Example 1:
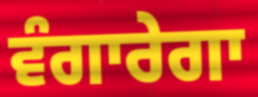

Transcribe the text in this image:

ਵੰਗਾਰੇਗਾ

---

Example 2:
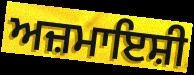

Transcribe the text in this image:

ਅਜ਼ਮਾਇਸ਼ੀ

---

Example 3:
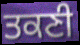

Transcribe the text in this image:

ਤਕਣੀ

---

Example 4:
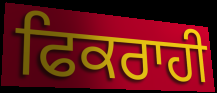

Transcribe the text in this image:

ਫਿਕਰਾਹੀ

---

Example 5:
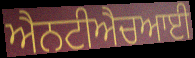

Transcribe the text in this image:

ਐਨਟੀਐਚਆਈ